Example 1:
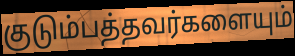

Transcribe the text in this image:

குடும்பத்தவர்களையும்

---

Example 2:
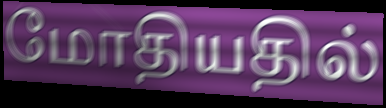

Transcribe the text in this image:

மோதியதில்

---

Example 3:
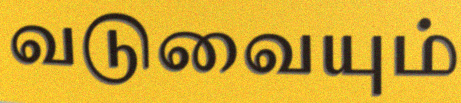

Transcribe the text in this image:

வடுவையும்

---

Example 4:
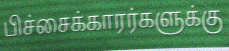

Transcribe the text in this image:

பிச்சைக்காரர்களுக்கு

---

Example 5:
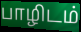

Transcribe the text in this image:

பாழிடம்